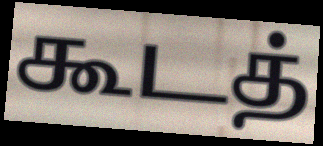
கூடத்